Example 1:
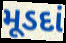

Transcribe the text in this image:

મૂડદાં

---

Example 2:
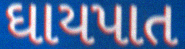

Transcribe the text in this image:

ઘાયપાત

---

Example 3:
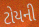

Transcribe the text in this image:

ટોયની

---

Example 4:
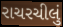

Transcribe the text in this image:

રાચરચીલું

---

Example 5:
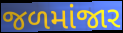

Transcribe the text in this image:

જળમાંજાર